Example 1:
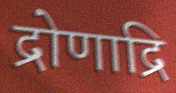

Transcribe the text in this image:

द्रोणाद्रि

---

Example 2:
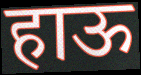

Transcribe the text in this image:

हाऊ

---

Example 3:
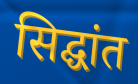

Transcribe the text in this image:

सिद्घांत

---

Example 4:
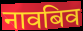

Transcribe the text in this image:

नावबिव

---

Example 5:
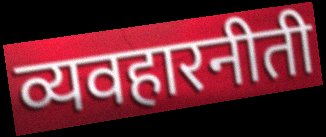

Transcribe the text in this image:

व्यवहारनीती